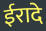
ईरादे